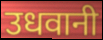
उधवानी